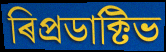
ৰিপ্ৰডাক্টিভ